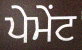
ਪੇਮੇਂਟ